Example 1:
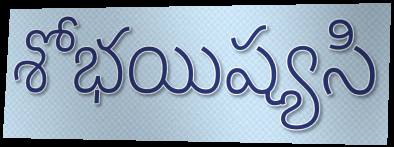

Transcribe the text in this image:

శోభయిష్యసి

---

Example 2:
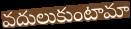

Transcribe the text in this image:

వదులుకుంటామా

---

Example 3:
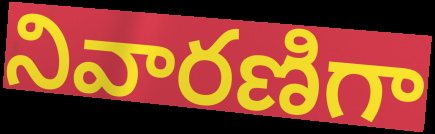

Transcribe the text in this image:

నివారణిగా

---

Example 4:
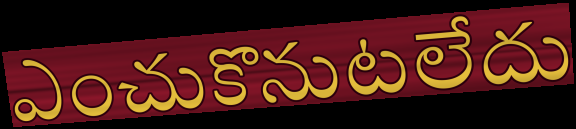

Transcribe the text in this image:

ఎంచుకొనుటలేదు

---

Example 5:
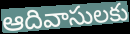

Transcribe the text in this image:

ఆదివాసులకు